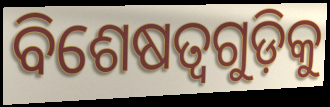
ବିଶେଷତ୍ୱଗୁଡ଼ିକୁ